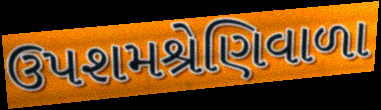
ઉપશમશ્રેણિવાળા